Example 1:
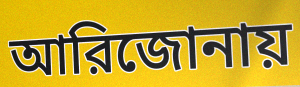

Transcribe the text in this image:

আরিজোনায়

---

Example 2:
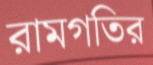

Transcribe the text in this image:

রামগতির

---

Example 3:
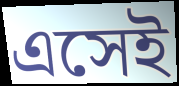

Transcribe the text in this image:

এসেই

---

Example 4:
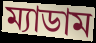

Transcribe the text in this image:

ম্যাডাম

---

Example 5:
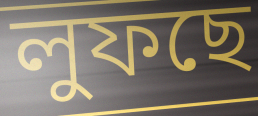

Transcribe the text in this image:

লুফছে